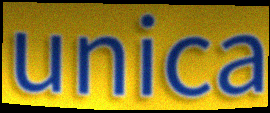
unica